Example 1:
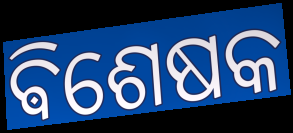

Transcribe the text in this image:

ଵିଶେଷକ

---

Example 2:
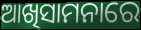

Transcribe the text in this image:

ଆଖିସାମନାରେ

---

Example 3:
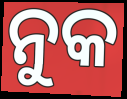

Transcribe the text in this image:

ନୁକ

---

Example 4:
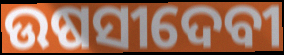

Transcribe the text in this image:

ଉଷସୀଦେବୀ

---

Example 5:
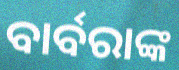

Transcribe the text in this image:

ବାର୍ବରାଙ୍କ